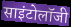
साइंटोलॉजी